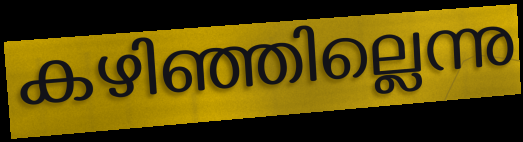
കഴിഞ്ഞില്ലെന്നു